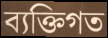
ব্যক্তিগত